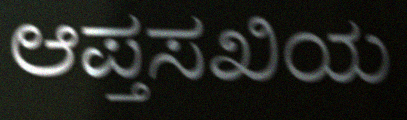
ಆಪ್ತಸಖಿಯ